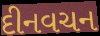
દીનવચન